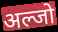
अल्जो